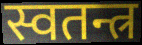
स्वतन्त्र